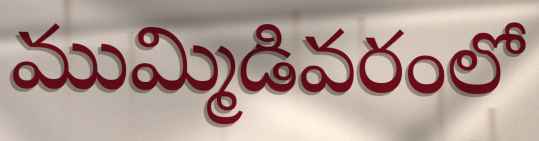
ముమ్మిడివరంలో